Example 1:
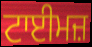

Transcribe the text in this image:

ਟਾਈਮਜ਼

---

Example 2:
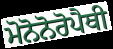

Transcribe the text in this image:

ਮੋਨੋਨੋਰੋਪੈਥੀ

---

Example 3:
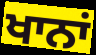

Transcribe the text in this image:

ਖਾਨਾਂ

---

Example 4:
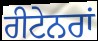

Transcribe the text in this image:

ਰੀਟੇਨਰਾਂ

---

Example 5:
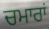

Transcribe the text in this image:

ਚਮਾਰਾਂ